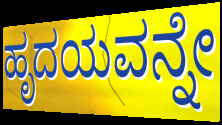
ಹೃದಯವನ್ನೇ